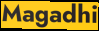
Magadhi